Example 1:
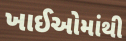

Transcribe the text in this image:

ખાઈઓમાંથી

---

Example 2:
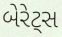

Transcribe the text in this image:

બેરેટ્સ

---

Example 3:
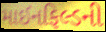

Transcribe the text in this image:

માઈનફિલ્ડની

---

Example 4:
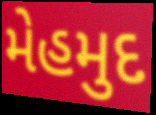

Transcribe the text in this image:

મેહમુદ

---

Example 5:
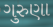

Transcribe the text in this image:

ગુરુણા